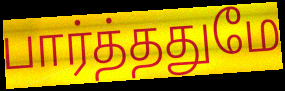
பார்த்ததுமே